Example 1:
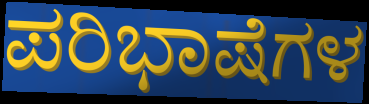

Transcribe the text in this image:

ಪರಿಭಾಷೆಗಳ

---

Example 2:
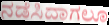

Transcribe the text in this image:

ನಡೆಸಿದಾಗಲೂ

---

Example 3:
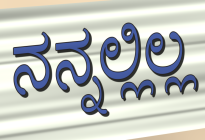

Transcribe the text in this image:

ನನ್ನಲ್ಲಿಲ್ಲ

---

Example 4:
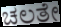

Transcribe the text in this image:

ಚಲತೇ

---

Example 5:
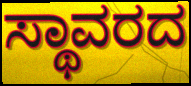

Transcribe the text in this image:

ಸ್ಥಾವರದ